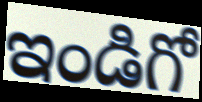
ఇండిగో